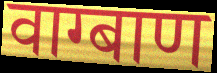
वाग्बाण